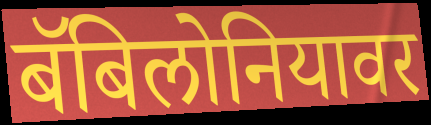
बॅबिलोनियावर